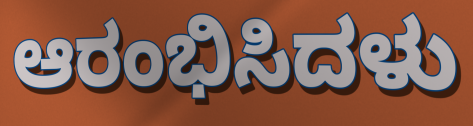
ಆರಂಭಿಸಿದಳು